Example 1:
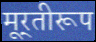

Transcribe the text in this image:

मूर्तीरूप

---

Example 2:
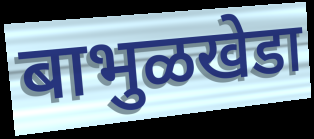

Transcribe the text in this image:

बाभुळखेडा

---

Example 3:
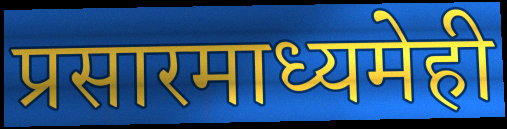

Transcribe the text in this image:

प्रसारमाध्यमेही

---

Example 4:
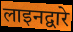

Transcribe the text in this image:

लाइनद्वारे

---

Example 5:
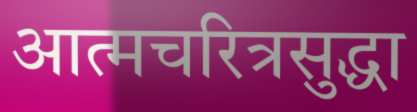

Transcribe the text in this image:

आत्मचरित्रसुद्धा